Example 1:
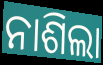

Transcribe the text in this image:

ନାଶିଲା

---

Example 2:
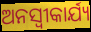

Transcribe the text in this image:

ଅନସ୍ବୀକାର୍ଯ୍ୟ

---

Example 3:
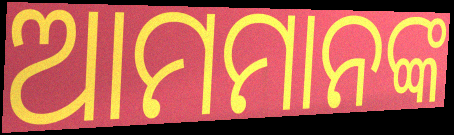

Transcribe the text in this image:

ଆମମାନଙ୍କ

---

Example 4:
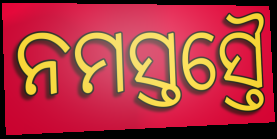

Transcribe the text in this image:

ନମସ୍ତସ୍ତୈ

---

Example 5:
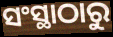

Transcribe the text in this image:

ସଂସ୍ଥାଠାରୁ